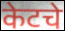
केटचे